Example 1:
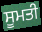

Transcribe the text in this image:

ਸੂਮਤੀ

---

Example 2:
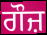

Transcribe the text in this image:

ਗੌਜ਼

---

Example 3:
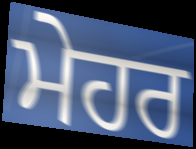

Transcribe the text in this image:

ਮੇਹਰ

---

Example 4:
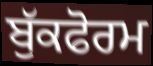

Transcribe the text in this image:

ਬੁੱਕਫੋਰਮ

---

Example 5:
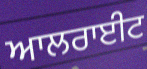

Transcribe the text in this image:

ਆਲਰਾਈਟ